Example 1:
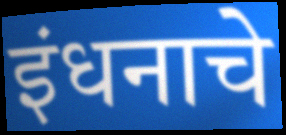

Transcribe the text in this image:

इंधनाचे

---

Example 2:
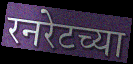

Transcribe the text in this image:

रनरेटच्या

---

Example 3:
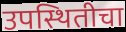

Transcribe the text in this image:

उपस्थितीचा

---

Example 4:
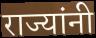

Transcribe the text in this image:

राज्यांनी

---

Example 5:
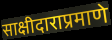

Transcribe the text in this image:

साक्षीदाराप्रमाणे